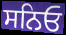
ਸਨਿਓ